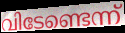
വിടേണ്ടെന്ന്